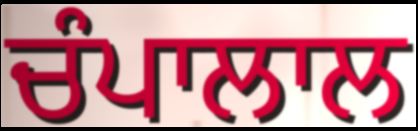
ਚੰਪਾਲਾਲ